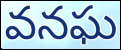
వనఘ